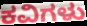
ಕವಿಗಳು